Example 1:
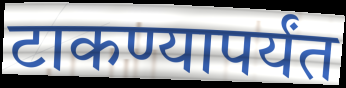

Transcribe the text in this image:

टाकण्यापर्यंत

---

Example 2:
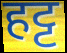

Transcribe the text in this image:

हट्ट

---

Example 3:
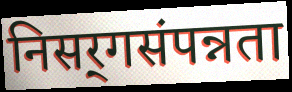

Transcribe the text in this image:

निसर्गसंपन्नता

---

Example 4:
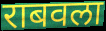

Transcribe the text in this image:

राबवला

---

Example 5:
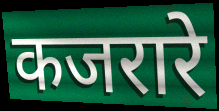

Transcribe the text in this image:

कजरारे